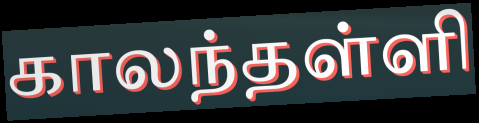
காலந்தள்ளி